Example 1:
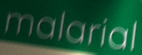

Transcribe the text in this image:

malarial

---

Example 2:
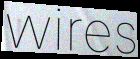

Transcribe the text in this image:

wires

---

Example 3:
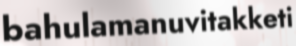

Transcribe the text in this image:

bahulamanuvitakketi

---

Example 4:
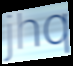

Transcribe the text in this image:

jhq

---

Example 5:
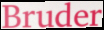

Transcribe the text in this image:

Bruder